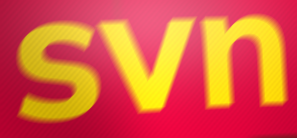
svn